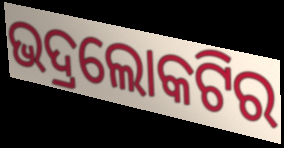
ଭଦ୍ରଲୋକଟିର